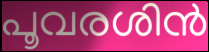
പൂവരശിൻ